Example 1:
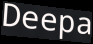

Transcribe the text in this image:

Deepa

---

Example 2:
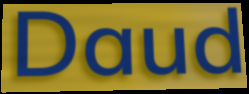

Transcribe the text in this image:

Daud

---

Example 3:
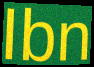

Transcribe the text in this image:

Ibn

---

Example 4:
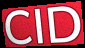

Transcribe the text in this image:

CID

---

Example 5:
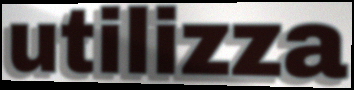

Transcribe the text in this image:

utilizza